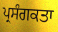
ਪ੍ਰਸੰਗਕਤਾ